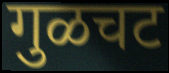
गुळचट